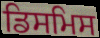
ਡਿਸਮਿਸ